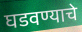
घडवण्याचे